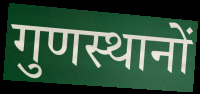
गुणस्थानों